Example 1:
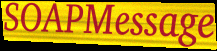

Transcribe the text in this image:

SOAPMessage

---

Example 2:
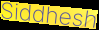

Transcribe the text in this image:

Siddhesh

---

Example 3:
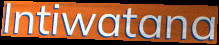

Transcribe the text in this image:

Intiwatana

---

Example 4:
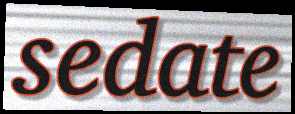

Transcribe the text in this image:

sedate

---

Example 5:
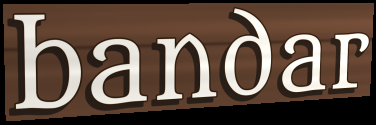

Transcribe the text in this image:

bandar